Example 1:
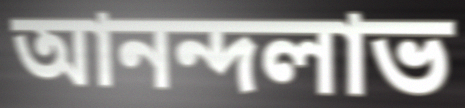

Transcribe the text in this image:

আনন্দলাভ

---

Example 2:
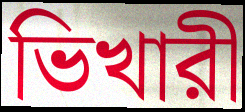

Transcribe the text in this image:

ভিখারী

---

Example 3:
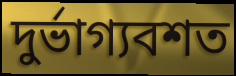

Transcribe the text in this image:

দুর্ভাগ্যবশত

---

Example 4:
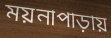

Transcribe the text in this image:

ময়নাপাড়ায়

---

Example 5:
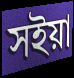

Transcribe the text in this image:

সইয়া